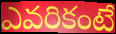
ఎవరికంటే